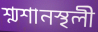
শ্মশানস্থলী